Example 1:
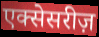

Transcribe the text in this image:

एक्सेसरीज़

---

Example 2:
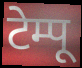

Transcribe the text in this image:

टेम्पू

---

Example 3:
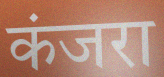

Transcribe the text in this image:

कंजरा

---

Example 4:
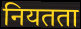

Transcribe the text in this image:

नियतता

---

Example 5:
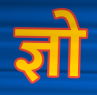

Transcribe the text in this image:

ज्ञो